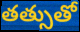
తత్సుతో